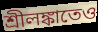
শ্রীলঙ্কাতেও